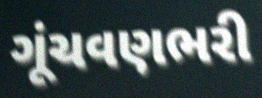
ગૂંચવણભરી